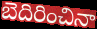
బెదిరించినా